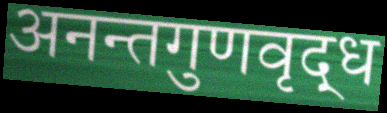
अनन्तगुणवृद्ध